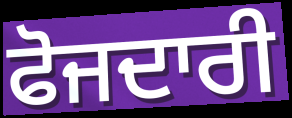
ਫੋਜਦਾਰੀ